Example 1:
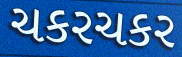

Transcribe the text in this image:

ચકરચકર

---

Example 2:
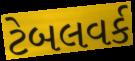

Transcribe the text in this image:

ટેબલવર્ક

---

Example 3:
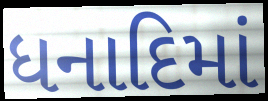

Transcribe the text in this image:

ધનાદિમાં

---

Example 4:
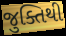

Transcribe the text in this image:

જુક્તિથી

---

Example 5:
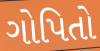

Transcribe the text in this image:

ગોપિતો